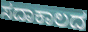
ಸದಾಕಾಲದ